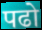
पढो